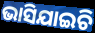
ଭାସିଯାଇଚି